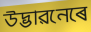
উদ্ভাৱনেৰে